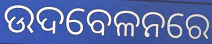
ଉଦବେଳନରେ